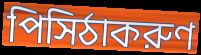
পিসিঠাকরুণ